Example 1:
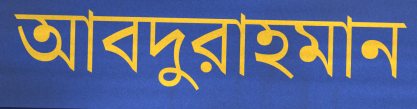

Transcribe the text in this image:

আবদুরাহমান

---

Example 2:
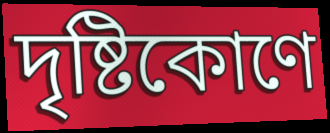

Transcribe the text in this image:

দৃষ্টিকোণে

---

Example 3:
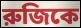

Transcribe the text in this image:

রুজিকে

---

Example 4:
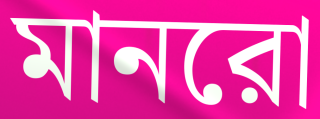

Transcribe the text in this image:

মানরো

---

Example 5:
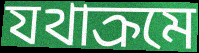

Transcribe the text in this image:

যথাক্রমে